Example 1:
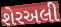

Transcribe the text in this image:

શેરઅલી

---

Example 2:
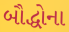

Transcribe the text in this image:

બૌદ્ધોના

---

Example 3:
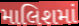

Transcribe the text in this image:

માલિશમાં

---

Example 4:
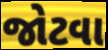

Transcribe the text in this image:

જોટવા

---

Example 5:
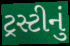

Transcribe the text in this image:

ટ્રસ્ટીનું